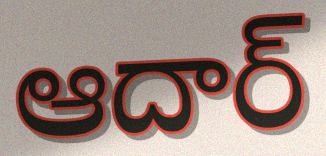
ఆదార్